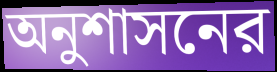
অনুশাসনের